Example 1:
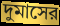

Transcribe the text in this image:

দুমাসের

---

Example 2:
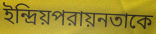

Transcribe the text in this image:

ইন্দ্রিয়পরায়নতাকে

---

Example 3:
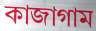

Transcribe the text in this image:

কাজাগাম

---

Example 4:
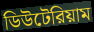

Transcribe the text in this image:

ডিউটেরিয়াম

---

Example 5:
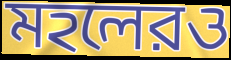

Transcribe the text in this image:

মহলেরও